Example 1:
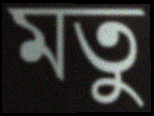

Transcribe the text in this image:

মতু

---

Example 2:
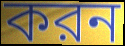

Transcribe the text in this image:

করন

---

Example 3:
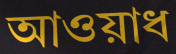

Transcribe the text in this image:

আওয়াধ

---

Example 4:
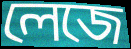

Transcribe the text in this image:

লেজে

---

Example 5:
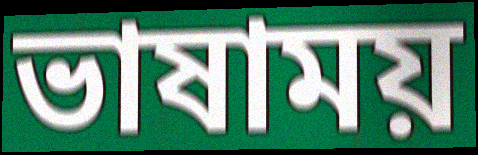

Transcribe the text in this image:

ভাষাময়